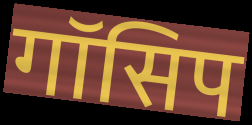
गॉसिप